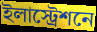
ইলাস্ট্রেশনে